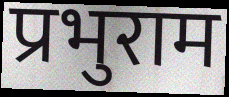
प्रभुराम